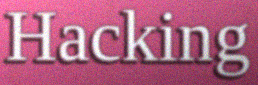
Hacking